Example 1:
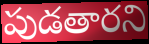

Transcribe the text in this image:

పుడతారని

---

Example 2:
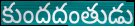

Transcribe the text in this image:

కుందదంతుడు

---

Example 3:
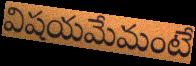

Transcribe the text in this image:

విషయమేమంటే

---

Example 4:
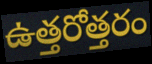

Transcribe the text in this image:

ఉత్తరోత్తరం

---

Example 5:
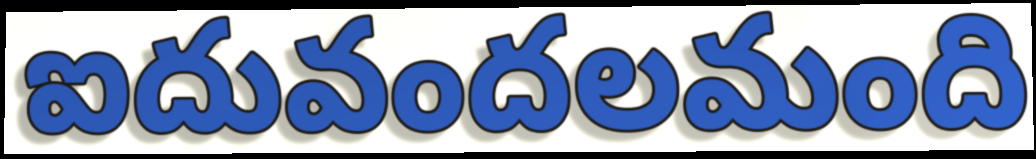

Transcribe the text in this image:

ఐదువందలమంది